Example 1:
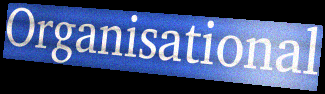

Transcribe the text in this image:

Organisational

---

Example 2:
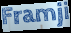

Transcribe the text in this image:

Framji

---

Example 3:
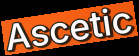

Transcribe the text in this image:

Ascetic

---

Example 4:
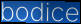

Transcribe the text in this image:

bodice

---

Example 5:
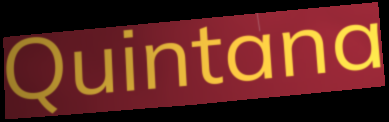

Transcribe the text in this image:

Quintana